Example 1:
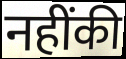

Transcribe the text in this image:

नहींकी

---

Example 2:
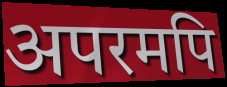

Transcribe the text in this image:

अपरमपि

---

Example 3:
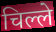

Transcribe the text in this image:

चिल्ले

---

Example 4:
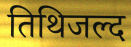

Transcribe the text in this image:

तिथिजल्द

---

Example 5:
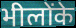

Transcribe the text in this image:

भीलोंके